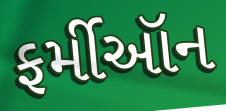
ફર્મીઑન